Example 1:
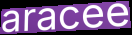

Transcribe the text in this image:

aracee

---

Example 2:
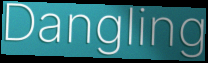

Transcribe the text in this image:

Dangling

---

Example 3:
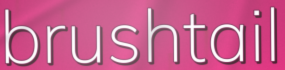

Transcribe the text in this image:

brushtail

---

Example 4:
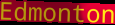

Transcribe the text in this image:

Edmonton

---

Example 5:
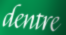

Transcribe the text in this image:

dentre